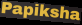
Papiksha